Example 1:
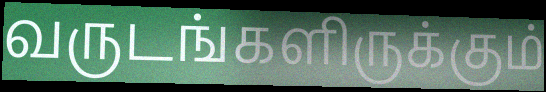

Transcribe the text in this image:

வருடங்களிருக்கும்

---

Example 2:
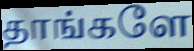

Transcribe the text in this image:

தாங்களே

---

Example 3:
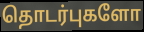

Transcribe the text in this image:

தொடர்புகளோ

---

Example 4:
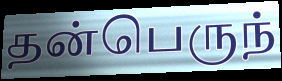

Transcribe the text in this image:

தன்பெருந்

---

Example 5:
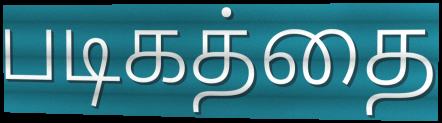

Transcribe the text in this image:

படிகத்தை